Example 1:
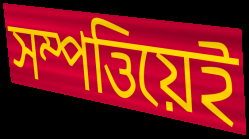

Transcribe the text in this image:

সম্পত্তিয়েই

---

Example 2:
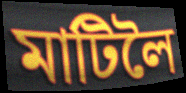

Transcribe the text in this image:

মাটিলৈ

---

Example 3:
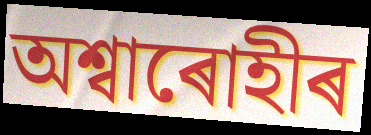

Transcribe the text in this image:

অশ্বাৰোহীৰ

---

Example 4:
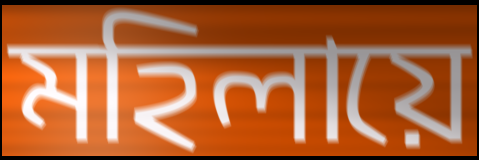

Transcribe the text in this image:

মহিলায়ে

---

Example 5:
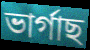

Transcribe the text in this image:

ভাৰ্গাছ